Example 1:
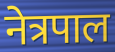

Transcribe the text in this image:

नेत्रपाल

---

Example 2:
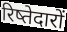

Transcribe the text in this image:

रिष्तेदारों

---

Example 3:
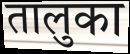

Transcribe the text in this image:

तालुका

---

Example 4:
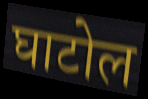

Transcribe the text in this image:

घाटोल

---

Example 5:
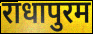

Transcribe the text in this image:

राधापुरम